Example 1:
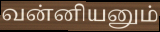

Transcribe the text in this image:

வன்னியனும்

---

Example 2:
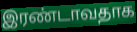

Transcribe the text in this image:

இரண்டாவதாக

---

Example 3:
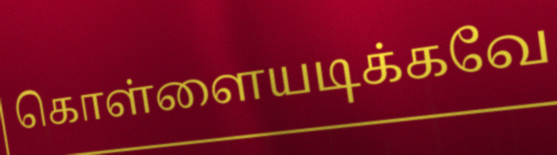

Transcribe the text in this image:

கொள்ளையடிக்கவே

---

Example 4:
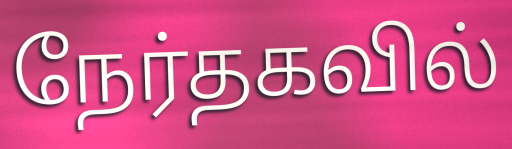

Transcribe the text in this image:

நேர்தகவில்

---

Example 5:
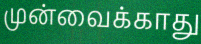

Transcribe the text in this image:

முன்வைக்காது